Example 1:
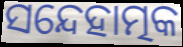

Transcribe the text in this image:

ସନ୍ଦେହାତ୍ମକ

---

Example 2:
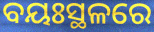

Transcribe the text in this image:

ବୟଃସ୍ଥଳରେ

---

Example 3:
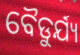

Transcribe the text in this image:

ବୈଡୁର୍ଯ୍ୟ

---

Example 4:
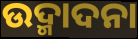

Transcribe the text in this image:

ଉଦ୍ମାଦନା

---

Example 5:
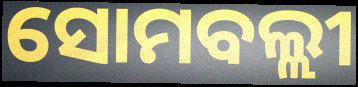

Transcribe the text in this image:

ସୋମବଲ୍ଲୀ